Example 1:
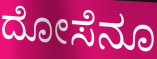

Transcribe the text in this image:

ದೋಸೆನೂ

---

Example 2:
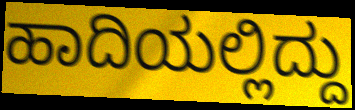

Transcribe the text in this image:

ಹಾದಿಯಲ್ಲಿದ್ದು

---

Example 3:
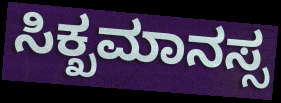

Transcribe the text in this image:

ಸಿಕ್ಖಮಾನಸ್ಸ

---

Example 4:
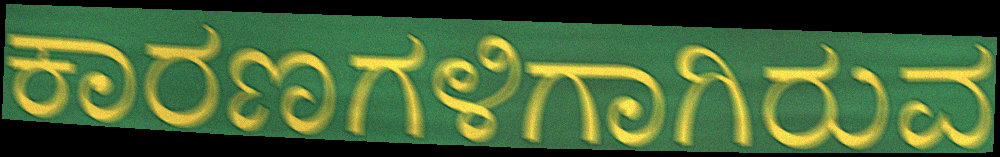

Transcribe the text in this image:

ಕಾರಣಗಳಿಗಾಗಿರುವ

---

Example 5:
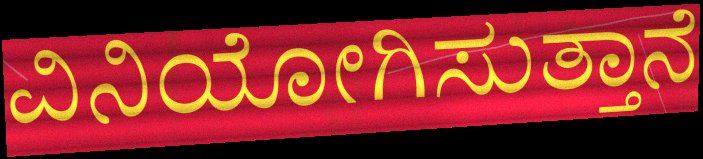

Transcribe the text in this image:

ವಿನಿಯೋಗಿಸುತ್ತಾನೆ